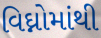
વિઘ્નોમાંથી